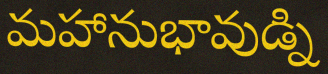
మహానుభావుడ్ని